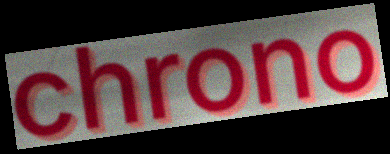
chrono